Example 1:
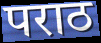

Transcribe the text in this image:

पराठ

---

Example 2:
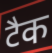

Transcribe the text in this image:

टैक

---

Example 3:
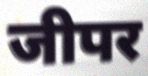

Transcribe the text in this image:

जीपर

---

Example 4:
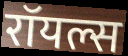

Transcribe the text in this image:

रॉयल्‍स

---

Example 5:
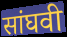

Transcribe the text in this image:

सांघवी